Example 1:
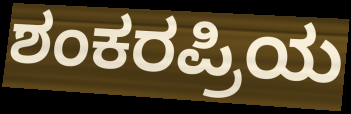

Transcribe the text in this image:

ಶಂಕರಪ್ರಿಯ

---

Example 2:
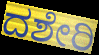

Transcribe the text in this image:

ದಶೇರಿ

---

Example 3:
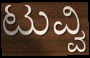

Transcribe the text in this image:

ಟುವ್ವಿ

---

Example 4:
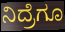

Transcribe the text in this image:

ನಿದ್ರೆಗೂ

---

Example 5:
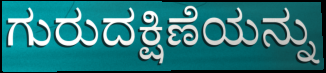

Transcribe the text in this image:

ಗುರುದಕ್ಷಿಣೆಯನ್ನು